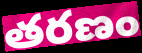
తరణం